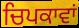
ਚਿਪਕਾਵਾਂ